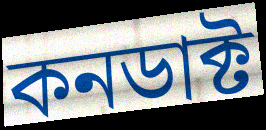
কনডাক্ট